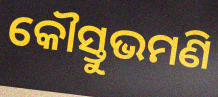
କୌସ୍ତୁଭମଣି